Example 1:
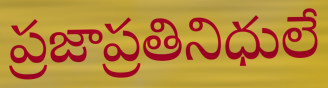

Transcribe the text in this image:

ప్రజాప్రతినిధులే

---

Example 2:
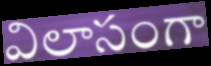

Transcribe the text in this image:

విలాసంగా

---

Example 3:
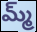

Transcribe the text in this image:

మ్మ్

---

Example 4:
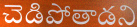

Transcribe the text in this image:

చెడిపోతాడని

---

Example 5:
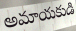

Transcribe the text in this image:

అమాయకుడి